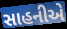
સાહનીએ